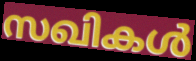
സഖികൾ